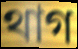
থাগ